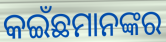
କଇଁଛମାନଙ୍କର